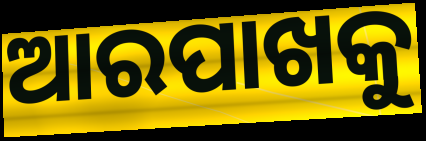
ଆରପାଖକୁ